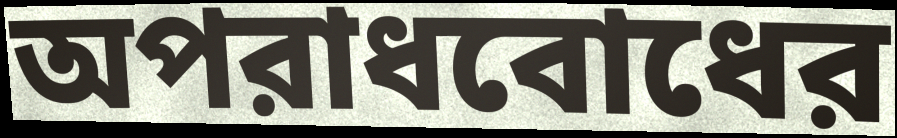
অপরাধবোধের